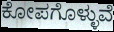
ಕೋಪಗೊಳ್ಳುವೆ